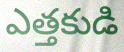
ఎత్తకుడి